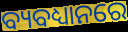
ବ୍ୟବଧ୍ୟାନରେ